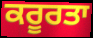
ਕਰੂਰਤਾ